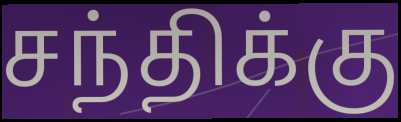
சந்திக்கு